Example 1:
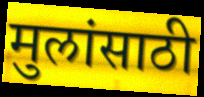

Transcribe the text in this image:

मुलांसाठी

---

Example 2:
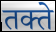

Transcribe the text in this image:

तक्ते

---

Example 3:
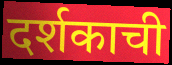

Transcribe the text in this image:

दर्शकाची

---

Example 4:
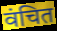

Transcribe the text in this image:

वंचित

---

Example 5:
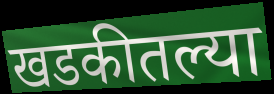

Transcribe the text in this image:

खडकीतल्या